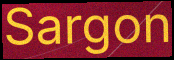
Sargon